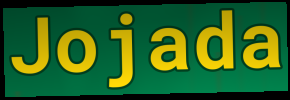
Jojada